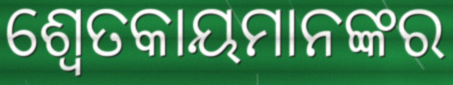
ଶ୍ବେତକାୟମାନଙ୍କର